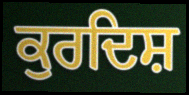
ਕੁਰਦਿਸ਼